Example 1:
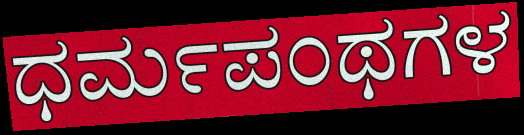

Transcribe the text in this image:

ಧರ್ಮಪಂಥಗಳ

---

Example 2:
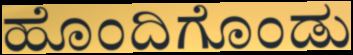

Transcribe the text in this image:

ಹೊಂದಿಗೊಂಡು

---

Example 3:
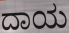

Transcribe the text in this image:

ದಾಯ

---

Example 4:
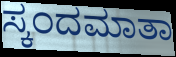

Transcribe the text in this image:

ಸ್ಕಂದಮಾತಾ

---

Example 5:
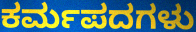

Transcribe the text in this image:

ಕರ್ಮಪದಗಳು